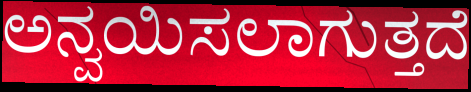
ಅನ್ವಯಿಸಲಾಗುತ್ತದೆ